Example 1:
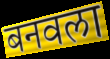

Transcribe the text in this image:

बनवला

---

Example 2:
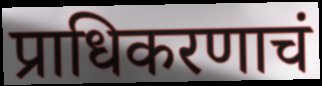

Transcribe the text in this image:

प्राधिकरणाचं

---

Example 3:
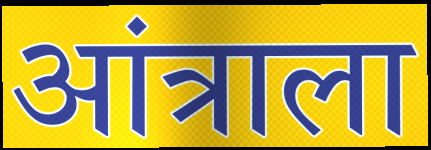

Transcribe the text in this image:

आंत्राला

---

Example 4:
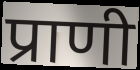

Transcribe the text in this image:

प्राणी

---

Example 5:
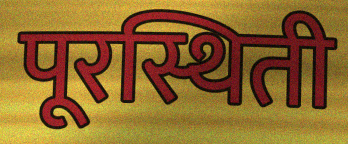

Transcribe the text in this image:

पूरस्थिती